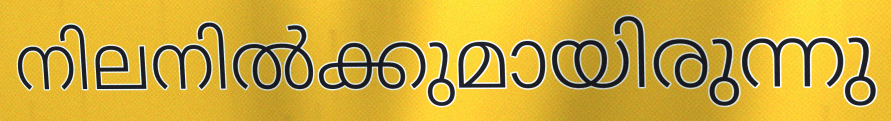
നിലനിൽക്കുമായിരുന്നു